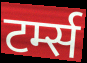
टर्म्स